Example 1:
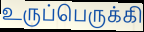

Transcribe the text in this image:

உருப்பெருக்கி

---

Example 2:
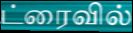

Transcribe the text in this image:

ட்ரைவில்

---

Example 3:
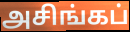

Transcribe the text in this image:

அசிங்கப்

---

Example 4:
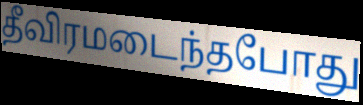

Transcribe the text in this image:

தீவிரமடைந்தபோது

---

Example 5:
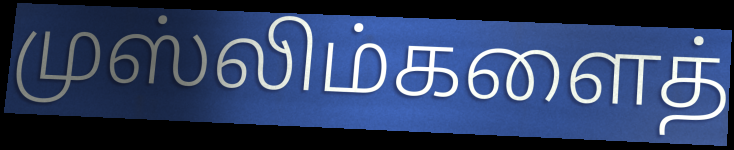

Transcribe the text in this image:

முஸ்லிம்களைத்